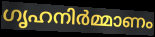
ഗൃഹനിർമ്മാണം